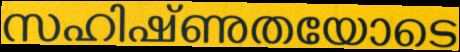
സഹിഷ്‌ണുതയോടെ